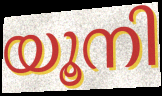
യൂനി